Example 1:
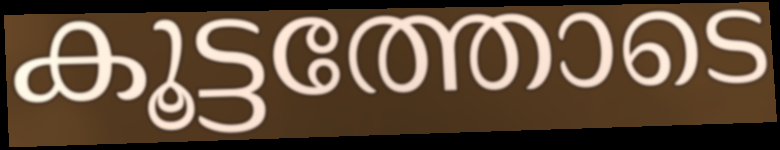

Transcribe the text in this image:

കൂട്ടത്തോടെ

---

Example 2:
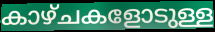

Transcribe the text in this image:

കാഴ്ചകളോടുള്ള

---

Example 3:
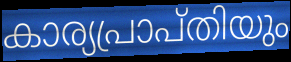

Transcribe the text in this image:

കാര്യപ്രാപ്തിയും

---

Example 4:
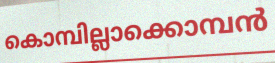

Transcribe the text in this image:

കൊമ്പില്ലാക്കൊമ്പൻ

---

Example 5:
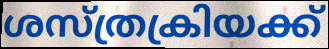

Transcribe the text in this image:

ശസ്ത്രക്രിയക്ക്